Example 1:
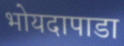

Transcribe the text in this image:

भोयदापाडा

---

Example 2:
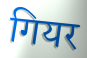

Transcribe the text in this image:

गियर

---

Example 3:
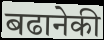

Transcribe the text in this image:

बढानेकी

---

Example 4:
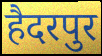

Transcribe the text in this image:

हैदरपुर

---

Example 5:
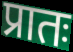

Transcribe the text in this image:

प्रातः